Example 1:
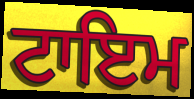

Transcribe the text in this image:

ਟਾਇਮ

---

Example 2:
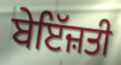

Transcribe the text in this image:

ਬੇਇੱਜ਼ਤੀ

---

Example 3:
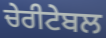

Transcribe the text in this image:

ਚੇਰੀਟੇਬਲ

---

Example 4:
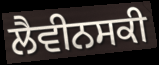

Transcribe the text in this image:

ਲੈਵੀਨਸਕੀ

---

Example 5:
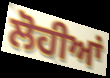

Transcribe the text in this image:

ਲੋਹੀਆਂ